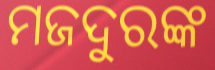
ମଜଦୁରଙ୍କ